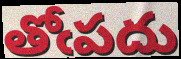
తోఁపదు